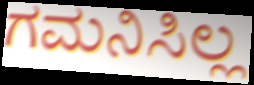
ಗಮನಿಸಿಲ್ಲ